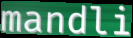
mandli